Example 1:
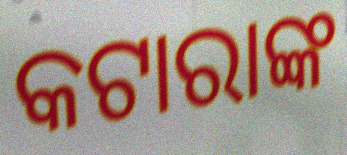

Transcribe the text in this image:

କଟାରାଙ୍କ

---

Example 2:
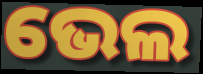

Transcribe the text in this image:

ଭେଲ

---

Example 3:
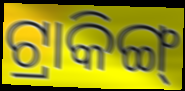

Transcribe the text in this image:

ଟ୍ରାକିଙ୍ଗ୍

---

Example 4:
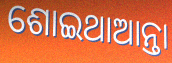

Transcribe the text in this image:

ଶୋଇଥାଆନ୍ତା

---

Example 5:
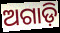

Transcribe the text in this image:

ଅଗାଡ଼ି